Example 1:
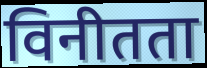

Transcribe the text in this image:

विनीतता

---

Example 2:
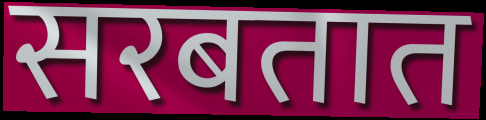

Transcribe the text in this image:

सरबतात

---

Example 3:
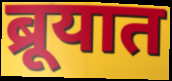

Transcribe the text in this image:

ब्रूयात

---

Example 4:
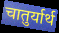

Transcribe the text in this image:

चातुर्यार्थ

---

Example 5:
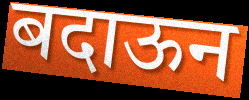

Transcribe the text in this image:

बदाऊन